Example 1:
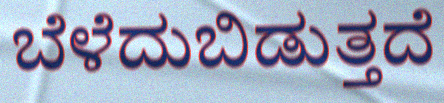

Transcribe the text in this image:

ಬೆಳೆದುಬಿಡುತ್ತದೆ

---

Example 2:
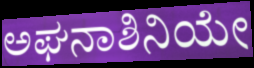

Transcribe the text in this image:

ಅಘನಾಶಿನಿಯೇ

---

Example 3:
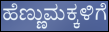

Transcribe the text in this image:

ಹೆಣ್ಣುಮಕ್ಕಳಿಗೆ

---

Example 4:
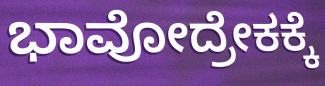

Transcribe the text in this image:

ಭಾವೋದ್ರೇಕಕ್ಕೆ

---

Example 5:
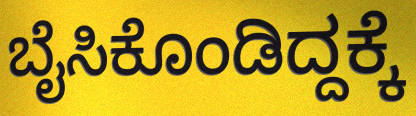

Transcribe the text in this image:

ಬೈಸಿಕೊಂಡಿದ್ದಕ್ಕೆ